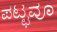
ಪಟ್ಟವೂ